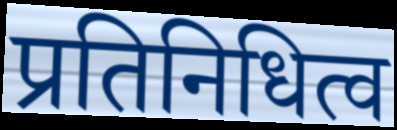
प्रतिनिधित्व